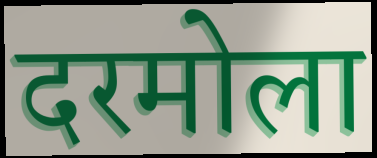
दरमोला